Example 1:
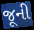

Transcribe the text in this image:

જૂની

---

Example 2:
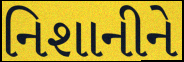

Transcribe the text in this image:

નિશાનીને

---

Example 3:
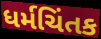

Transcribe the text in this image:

ધર્મચિંતક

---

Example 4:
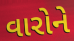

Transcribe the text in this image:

વારોને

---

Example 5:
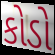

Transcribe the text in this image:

કોડો